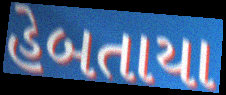
હેબતાયા